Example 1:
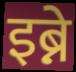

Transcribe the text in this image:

इब्ने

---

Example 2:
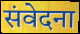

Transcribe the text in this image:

संवेदना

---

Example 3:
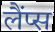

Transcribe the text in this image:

लैंप्स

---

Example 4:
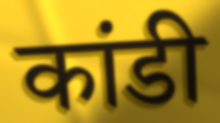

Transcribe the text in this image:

कांडी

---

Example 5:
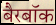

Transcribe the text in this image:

बैरबॉक